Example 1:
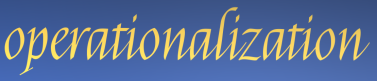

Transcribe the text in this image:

operationalization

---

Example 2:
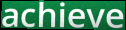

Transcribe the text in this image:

achieve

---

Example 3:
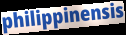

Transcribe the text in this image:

philippinensis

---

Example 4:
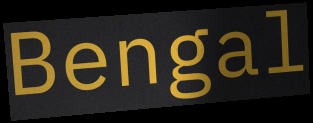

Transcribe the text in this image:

Bengal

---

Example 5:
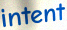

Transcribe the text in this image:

intent